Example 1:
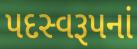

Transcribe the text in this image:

પદસ્વરૂપનાં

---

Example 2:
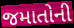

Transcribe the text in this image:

જમાતોની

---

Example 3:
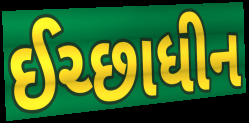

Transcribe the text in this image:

ઈચ્છાધીન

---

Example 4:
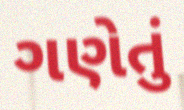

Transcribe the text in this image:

ગણેતું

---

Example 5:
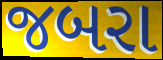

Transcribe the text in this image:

જબરા